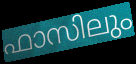
ഫാസിലും